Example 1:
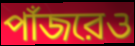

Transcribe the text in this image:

পাঁজরেও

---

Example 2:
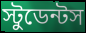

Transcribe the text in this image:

স্টুডেন্টস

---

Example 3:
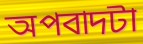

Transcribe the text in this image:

অপবাদটা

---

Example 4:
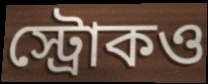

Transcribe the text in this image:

স্ট্রোকও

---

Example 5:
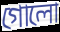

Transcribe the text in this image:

গোলো